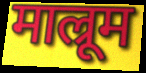
माल्रूम